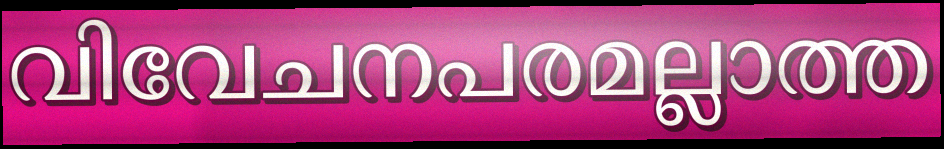
വിവേചനപരമല്ലാത്ത